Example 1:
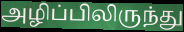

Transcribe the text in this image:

அழிப்பிலிருந்து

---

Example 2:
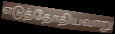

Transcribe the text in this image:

எடுத்தோதியவாறு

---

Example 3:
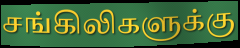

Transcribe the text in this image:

சங்கிலிகளுக்கு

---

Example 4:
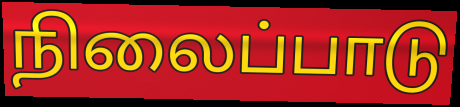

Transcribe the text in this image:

நிலைப்பாடு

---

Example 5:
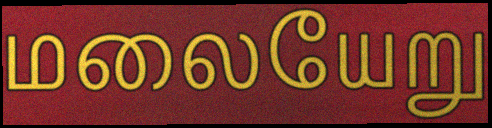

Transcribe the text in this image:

மலையேறு